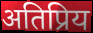
अतिप्रिय